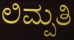
ಲಿಮ್ಪತಿ